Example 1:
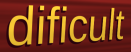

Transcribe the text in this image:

dificult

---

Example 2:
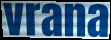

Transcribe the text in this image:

vrana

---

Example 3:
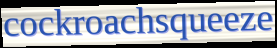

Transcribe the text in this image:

cockroachsqueeze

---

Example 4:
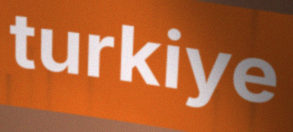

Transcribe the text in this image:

turkiye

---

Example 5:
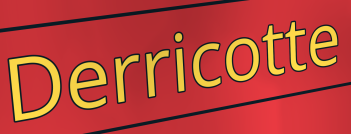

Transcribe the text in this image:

Derricotte